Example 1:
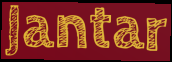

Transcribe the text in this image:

Jantar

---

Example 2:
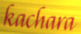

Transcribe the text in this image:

kachara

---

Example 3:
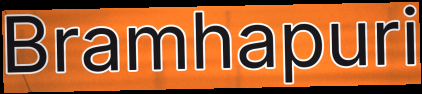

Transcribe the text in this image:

Bramhapuri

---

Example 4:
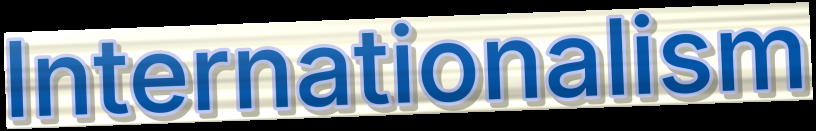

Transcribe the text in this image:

Internationalism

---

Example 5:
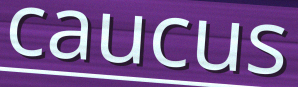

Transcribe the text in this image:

caucus